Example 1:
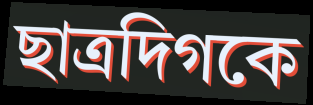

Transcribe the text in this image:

ছাত্রদিগকে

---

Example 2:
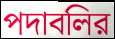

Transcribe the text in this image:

পদাবলির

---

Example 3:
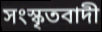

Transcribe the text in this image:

সংস্কৃতবাদী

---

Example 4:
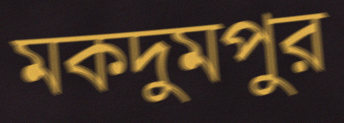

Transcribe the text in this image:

মকদুমপুর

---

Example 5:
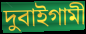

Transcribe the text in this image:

দুবাইগামী